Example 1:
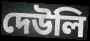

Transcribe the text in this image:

দেউলি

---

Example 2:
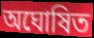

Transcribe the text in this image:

অঘোষিত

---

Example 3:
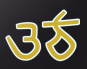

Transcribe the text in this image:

ওঠ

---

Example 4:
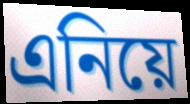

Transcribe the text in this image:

এনিয়ে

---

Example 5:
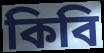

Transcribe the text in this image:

কিবি